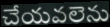
చేయవలెను